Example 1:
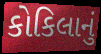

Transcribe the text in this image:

કોકિલાનું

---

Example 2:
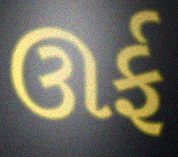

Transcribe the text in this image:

ઊર્ફ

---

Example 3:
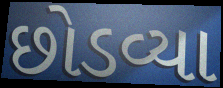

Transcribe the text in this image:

છોડવ્યા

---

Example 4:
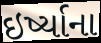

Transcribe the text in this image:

ઇર્ષ્યાના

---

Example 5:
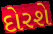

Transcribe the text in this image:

દોરશે